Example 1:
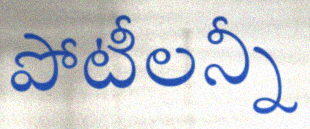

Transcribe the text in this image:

పోటీలన్నీ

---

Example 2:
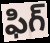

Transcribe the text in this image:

ఫిగ్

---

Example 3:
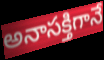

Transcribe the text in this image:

అనాసక్తిగానే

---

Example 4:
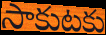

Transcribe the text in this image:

సాకుటకు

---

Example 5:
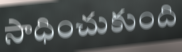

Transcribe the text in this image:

సాధించుకుంది